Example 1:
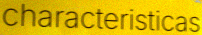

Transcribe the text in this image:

characteristicas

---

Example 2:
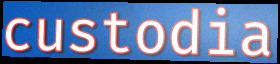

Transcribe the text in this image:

custodia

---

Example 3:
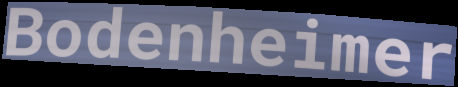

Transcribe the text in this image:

Bodenheimer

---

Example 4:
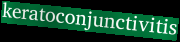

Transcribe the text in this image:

keratoconjunctivitis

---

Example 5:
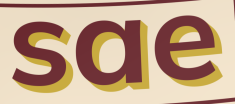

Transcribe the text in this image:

sae